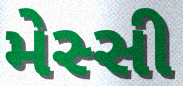
મેસ્સી